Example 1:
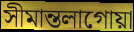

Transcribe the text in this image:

সীমান্তলাগোয়া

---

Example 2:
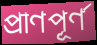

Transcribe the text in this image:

প্রাণপূর্ণ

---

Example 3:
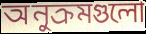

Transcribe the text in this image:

অনুক্রমগুলো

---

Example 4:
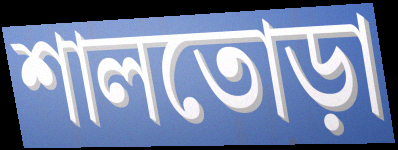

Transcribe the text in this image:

শালতোড়া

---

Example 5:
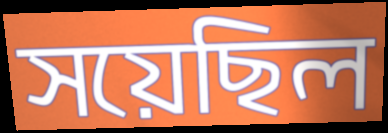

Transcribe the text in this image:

সয়েছিল